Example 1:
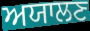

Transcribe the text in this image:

ਅਯਾਲਣ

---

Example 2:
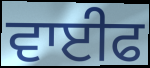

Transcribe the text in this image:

ਵਾਈਫ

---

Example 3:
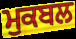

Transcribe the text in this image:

ਮੁਕਬਲ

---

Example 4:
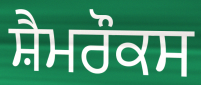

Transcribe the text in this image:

ਸ਼ੈਮਰੌਕਸ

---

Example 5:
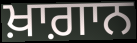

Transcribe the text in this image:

ਖ਼ਾਗ਼ਾਨ